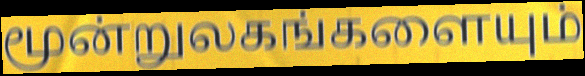
மூன்றுலகங்களையும்